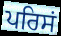
ਪਰਿਸਂ